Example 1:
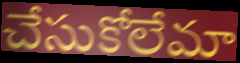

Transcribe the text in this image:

చేసుకోలేమా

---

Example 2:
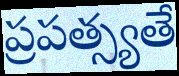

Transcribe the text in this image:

ప్రపత్స్యతే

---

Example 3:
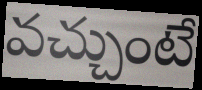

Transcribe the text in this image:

వచ్చుంటే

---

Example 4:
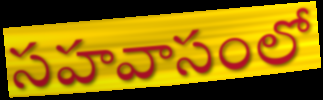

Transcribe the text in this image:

సహవాసంలో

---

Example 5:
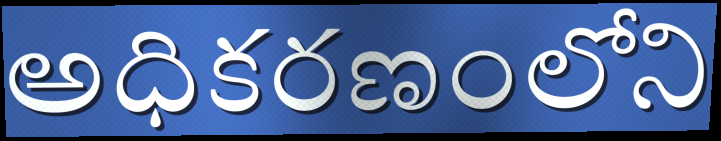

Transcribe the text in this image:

అధికరణంలోని